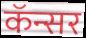
कॅन्सर